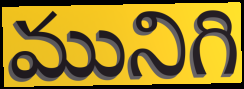
మునిగి